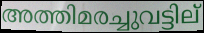
അത്തിമരച്ചുവട്ടില്